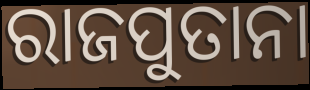
ରାଜପୁତାନା